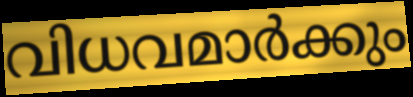
വിധവമാർക്കും